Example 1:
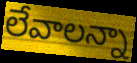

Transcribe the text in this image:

లేవాలన్నా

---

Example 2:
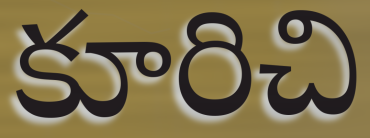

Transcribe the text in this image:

కూరిచి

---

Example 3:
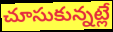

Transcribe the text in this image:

చూసుకున్నట్లే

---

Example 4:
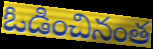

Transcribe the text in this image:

ఓడించినంత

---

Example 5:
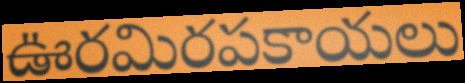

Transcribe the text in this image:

ఊరమిరపకాయలు